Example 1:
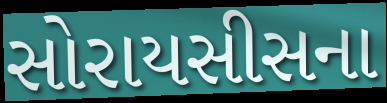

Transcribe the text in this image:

સોરાયસીસના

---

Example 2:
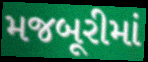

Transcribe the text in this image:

મજબૂરીમાં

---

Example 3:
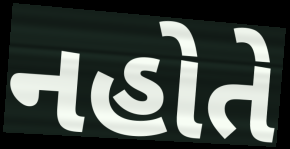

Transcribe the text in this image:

નહોતે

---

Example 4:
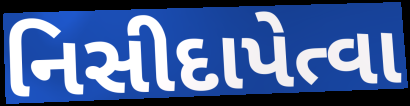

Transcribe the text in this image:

નિસીદાપેત્વા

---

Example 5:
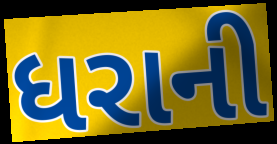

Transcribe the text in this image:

ધરાની